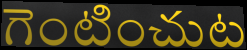
గెంటించుట